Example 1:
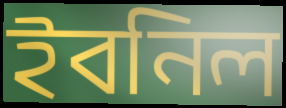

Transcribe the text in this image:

ইবনিল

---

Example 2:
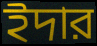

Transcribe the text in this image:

ইদার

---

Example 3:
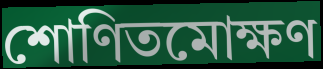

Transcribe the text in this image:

শোণিতমোক্ষণ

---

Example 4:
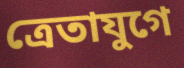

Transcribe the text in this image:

ত্রেতাযুগে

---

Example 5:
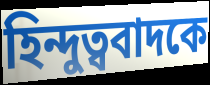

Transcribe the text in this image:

হিন্দুত্ববাদকে